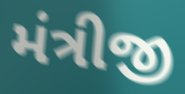
મંત્રીજી